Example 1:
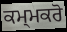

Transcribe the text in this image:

ਕਮ੍ਮਕਰੋ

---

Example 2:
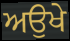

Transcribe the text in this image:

ਅਉਖੇ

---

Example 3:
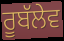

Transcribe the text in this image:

ਰੂਬੱਲੇਵ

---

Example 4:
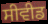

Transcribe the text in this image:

ਸੀਵੀਡ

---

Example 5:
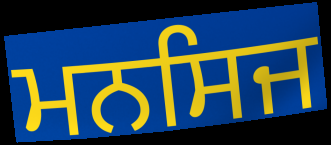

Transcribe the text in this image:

ਮਨਸਿਜ